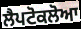
ਲੈਪਟੋਕਲੋਆ